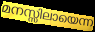
മനസ്സിലായെന്ന